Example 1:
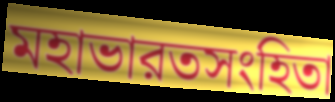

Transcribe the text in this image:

মহাভারতসংহিতা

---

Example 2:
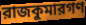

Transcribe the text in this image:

রাজকুমারগণ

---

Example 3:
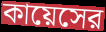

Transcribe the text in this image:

কায়েসের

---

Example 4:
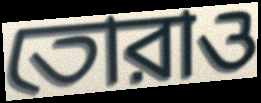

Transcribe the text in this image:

তোরাও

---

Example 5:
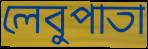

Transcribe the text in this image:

লেবুপাতা